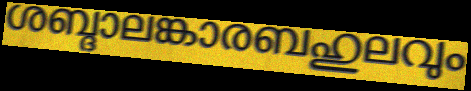
ശബ്ദാലങ്കാരബഹുലവും